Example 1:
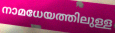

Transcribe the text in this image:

നാമധേയത്തിലുള്ള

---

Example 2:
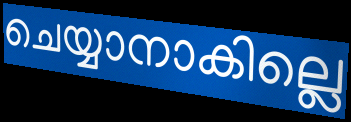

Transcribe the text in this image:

ചെയ്യാനാകില്ലെ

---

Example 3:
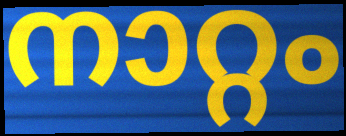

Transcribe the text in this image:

നാറ്റം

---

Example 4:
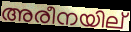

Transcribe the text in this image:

അരീനയില്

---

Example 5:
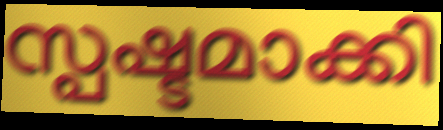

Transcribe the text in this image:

സ്പഷ്ടമാക്കി